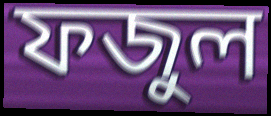
ফজুল